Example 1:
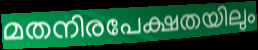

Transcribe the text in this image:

മതനിരപേക്ഷതയിലും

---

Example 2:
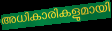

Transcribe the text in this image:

അധികാരികളുമായി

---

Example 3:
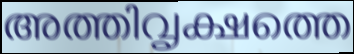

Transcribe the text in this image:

അത്തിവൃക്ഷത്തെ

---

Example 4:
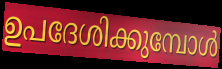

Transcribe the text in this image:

ഉപദേശിക്കുമ്പോൾ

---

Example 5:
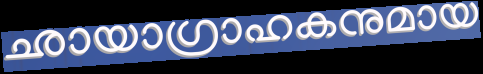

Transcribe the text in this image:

ഛായാഗ്രാഹകനുമായ